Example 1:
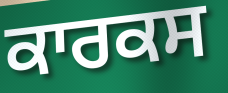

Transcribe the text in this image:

ਕਾਰਕਸ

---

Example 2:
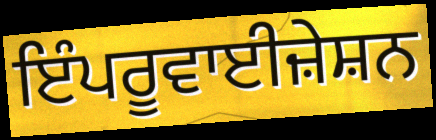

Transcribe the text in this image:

ਇੰਪਰੂਵਾਈਜ਼ੇਸ਼ਨ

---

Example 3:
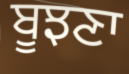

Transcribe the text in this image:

ਬੂਝਣਾ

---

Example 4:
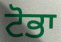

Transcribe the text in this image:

ਟੋਭਾ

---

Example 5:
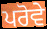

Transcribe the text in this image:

ਪਰੋਵੇ